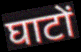
घाटों